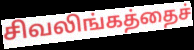
சிவலிங்கத்தைச்